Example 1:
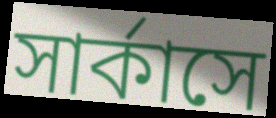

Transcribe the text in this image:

সার্কাসে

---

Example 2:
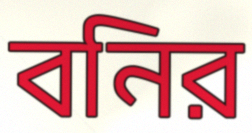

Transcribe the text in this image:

বনির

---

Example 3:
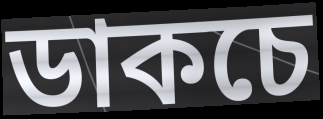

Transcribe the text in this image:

ডাকচে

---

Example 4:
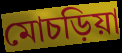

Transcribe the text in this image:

মোচড়িয়া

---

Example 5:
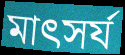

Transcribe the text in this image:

মাৎসর্য